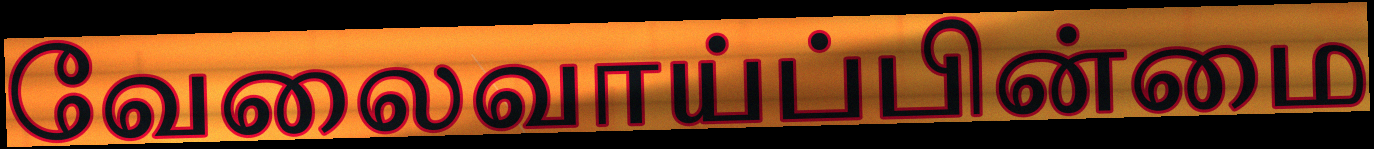
வேலைவாய்ப்பின்மை